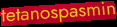
tetanospasmin